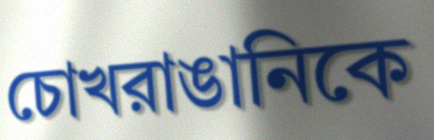
চোখরাঙানিকে